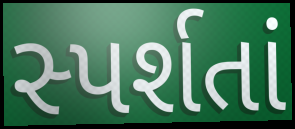
સ્પર્શતાં